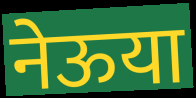
नेऊया